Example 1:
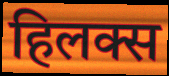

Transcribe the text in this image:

हिलक्स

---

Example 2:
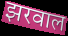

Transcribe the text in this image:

झरवाल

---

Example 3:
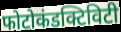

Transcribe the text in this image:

फोटोकंडक्टिविटी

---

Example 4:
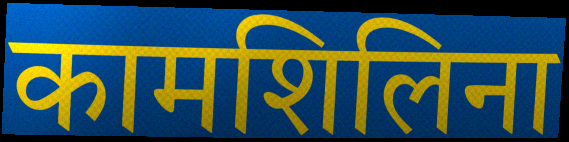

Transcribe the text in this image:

कामशिलिना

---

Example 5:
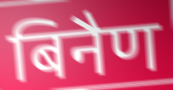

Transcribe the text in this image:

बिनैण